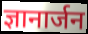
ज्ञानार्जन